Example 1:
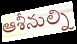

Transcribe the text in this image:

ఆశీనుల్ని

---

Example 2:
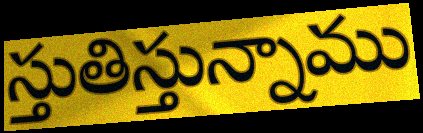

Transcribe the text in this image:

స్తుతిస్తున్నాము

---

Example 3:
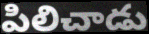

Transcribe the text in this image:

పిలిచాడు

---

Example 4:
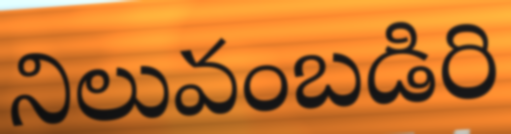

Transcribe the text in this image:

నిలువంబడిరి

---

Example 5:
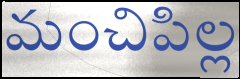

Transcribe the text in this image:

మంచిపిల్ల